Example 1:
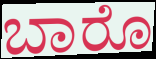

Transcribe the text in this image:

ಬಾರೊ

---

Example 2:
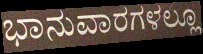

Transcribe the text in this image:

ಭಾನುವಾರಗಳಲ್ಲೂ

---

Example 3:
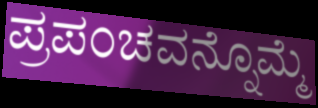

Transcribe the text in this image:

ಪ್ರಪಂಚವನ್ನೊಮ್ಮೆ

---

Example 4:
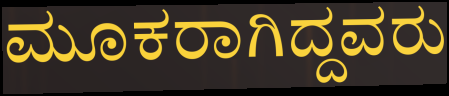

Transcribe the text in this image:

ಮೂಕರಾಗಿದ್ದವರು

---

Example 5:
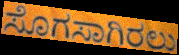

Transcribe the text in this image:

ಸೊಗಸಾಗಿರಲು